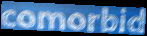
comorbid